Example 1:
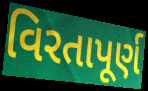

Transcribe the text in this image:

વિરતાપૂર્ણ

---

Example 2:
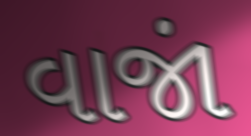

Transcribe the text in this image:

વાજાં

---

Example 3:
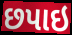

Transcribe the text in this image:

છપાઇ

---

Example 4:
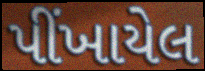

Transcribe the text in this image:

પીંખાયેલ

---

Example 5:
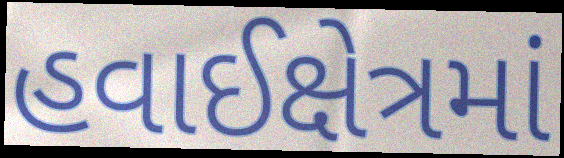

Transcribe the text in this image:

હવાઈક્ષેત્રમાં